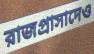
রাজপ্রাসাদেও